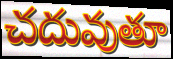
చదువుతూ